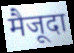
मैजूदा